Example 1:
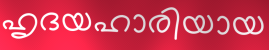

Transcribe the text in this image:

ഹൃദയഹാരിയായ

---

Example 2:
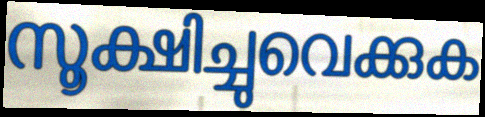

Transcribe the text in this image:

സൂക്ഷിച്ചുവെക്കുക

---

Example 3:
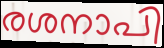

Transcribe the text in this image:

രശനാപി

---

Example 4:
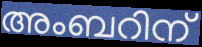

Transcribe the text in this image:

അംബറിന്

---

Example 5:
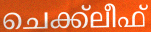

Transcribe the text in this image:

ചെക്ക്ലീഫ്